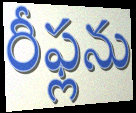
రీఫ్లను